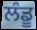
ਲੰਡੂ